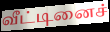
வீட்டினைச்